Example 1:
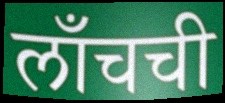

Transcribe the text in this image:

लाँचची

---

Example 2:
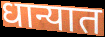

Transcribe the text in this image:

धान्यात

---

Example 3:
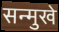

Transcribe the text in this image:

सन्मुखे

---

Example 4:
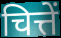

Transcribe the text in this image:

चित्तें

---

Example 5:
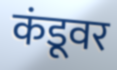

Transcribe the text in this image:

कंडूवर